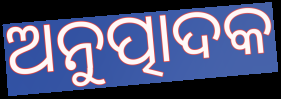
ଅନୁତ୍ପାଦକ